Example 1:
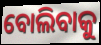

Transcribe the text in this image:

ବୋଲିବାକୁ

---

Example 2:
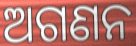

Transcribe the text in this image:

ଅଗଣନ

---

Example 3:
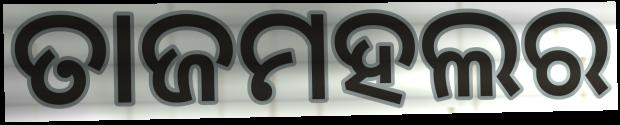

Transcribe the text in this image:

ତାଜମହଲର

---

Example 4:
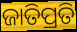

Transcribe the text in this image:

ଜାତିପ୍ରତି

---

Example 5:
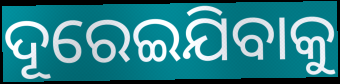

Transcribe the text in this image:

ଦୂରେଇଯିବାକୁ